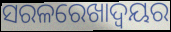
ସରଳରେଖାଦ୍ବୟର